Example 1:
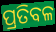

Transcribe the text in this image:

ପ୍ରତିବଳ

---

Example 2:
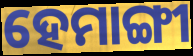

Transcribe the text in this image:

ହେମାଙ୍ଗୀ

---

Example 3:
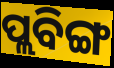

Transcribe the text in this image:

ପ୍ଲବିଙ୍ଗ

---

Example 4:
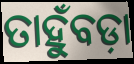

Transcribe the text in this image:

ତାହୁଁବଡ଼ା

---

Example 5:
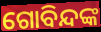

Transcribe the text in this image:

ଗୋବିନ୍ଦଙ୍କ